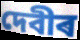
দেবীৰ